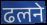
ढलने